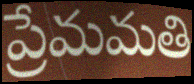
ప్రేమమతి